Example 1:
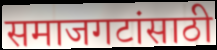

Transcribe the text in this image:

समाजगटांसाठी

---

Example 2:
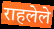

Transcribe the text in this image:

राहलेले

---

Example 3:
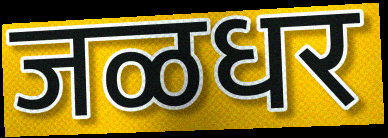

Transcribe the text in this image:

जळधर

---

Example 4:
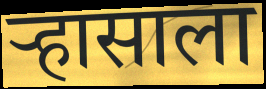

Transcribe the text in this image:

ऱ्हासाला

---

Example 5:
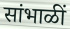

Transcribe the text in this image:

सांभाळीं